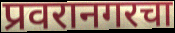
प्रवरानगरचा